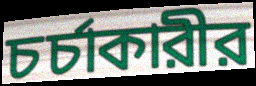
চর্চাকারীর